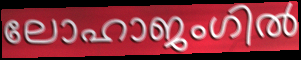
ലോഹാജംഗിൽ